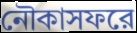
নৌকাসফরে